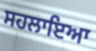
ਸਹਲਾਇਆ